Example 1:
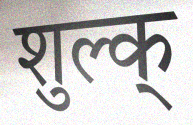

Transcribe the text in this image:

शुल्क्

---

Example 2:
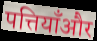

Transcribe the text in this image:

पत्तियाँऔर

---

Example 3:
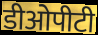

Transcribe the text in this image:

डीओपीटी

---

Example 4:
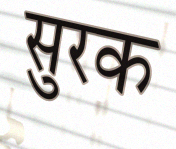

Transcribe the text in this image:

सुरक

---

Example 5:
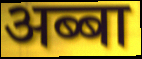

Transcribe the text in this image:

अब्बा